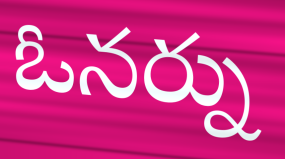
ఓనర్ను